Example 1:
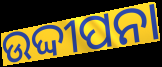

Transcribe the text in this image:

ଉଦ୍ଦୀପନା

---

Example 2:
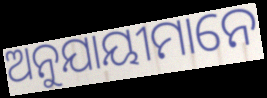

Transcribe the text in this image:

ଅନୁଯାୟୀମାନେ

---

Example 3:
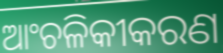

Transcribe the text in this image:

ଆଂଚଳିକୀକରଣ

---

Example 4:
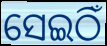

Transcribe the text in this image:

ସେଇଠିଁ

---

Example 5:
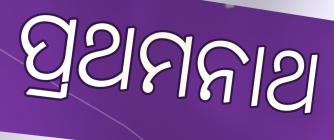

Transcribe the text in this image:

ପ୍ରଥମନାଥ